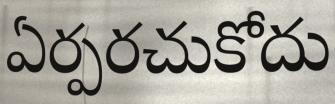
ఏర్పరచుకోదు